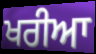
ਖਰੀਆ